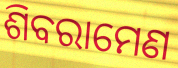
ଶିବରାମେଣ